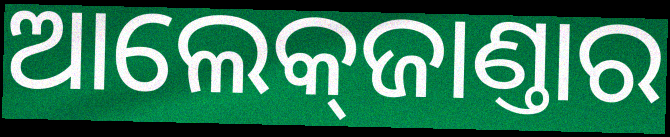
ଆଲେକ୍‌ଜାଣ୍ତାର